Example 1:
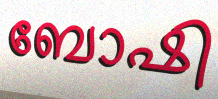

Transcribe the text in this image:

ബോഷി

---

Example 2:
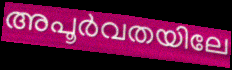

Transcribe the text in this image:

അപൂർവതയിലേ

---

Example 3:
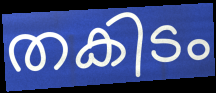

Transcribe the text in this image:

തകിടം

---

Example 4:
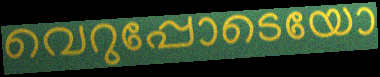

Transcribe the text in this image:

വെറുപ്പോടെയോ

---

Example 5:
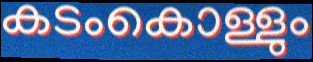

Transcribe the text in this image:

കടംകൊള്ളും